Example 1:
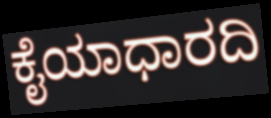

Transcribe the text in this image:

ಕೈಯಾಧಾರದಿ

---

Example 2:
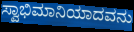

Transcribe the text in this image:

ಸ್ವಾಭಿಮಾನಿಯಾದವನು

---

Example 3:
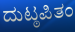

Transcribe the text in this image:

ದುಟ್ಠಪಿತಂ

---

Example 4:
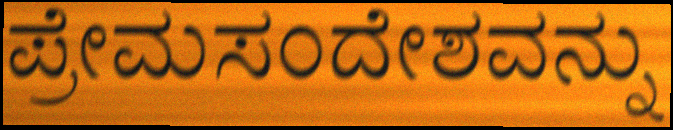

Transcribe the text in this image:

ಪ್ರೇಮಸಂದೇಶವನ್ನು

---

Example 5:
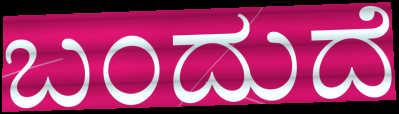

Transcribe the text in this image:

ಬಂದುದೆ